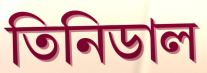
তিনিডাল